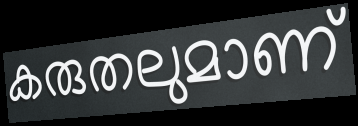
കരുതലുമാണ്